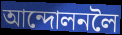
আন্দোলনলৈ